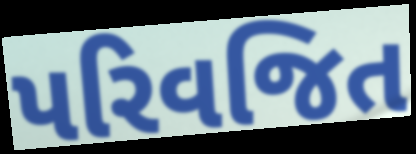
પરિવજિત